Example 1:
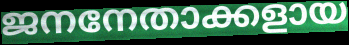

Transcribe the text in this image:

ജനനേതാക്കളായ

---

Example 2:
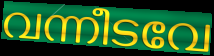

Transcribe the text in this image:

വന്നീടവേ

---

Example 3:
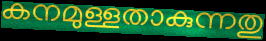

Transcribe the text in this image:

കനമുള്ളതാകുന്നതു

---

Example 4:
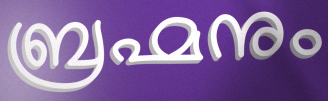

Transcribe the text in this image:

ബ്രഹ്മനും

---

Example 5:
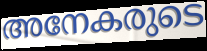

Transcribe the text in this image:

അനേകരുടെ